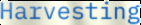
Harvesting